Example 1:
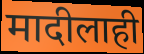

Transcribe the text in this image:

मादीलाही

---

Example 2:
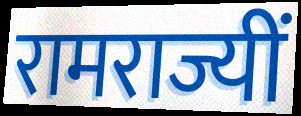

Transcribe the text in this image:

रामराज्यीं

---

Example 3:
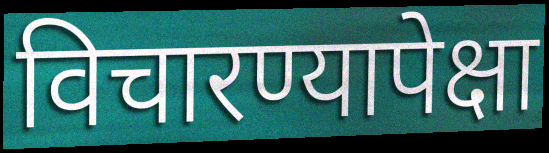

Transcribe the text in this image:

विचारण्यापेक्षा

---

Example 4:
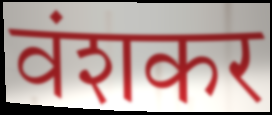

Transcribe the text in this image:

वंशकर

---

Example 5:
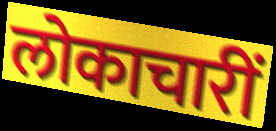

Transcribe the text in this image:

लोकाचारीं